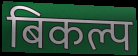
बिकल्प